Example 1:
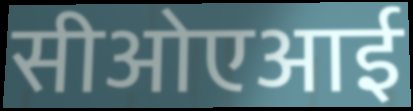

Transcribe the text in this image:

सीओएआई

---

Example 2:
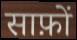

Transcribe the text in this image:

साफ़ों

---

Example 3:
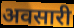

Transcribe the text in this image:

अवसारी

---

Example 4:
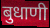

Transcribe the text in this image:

बुधाणी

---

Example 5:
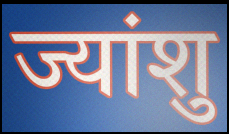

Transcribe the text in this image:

ज्यांशु